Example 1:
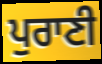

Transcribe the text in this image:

ਪੁਰਾਣੀ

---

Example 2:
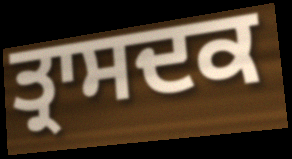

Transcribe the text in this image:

ਤ੍ਰਾਸਦਕ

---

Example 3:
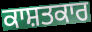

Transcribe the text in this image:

ਕਾਸ਼ਤਕਾਰ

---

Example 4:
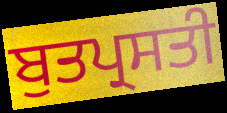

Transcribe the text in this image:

ਬੁਤਪ੍ਰਸਤੀ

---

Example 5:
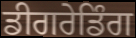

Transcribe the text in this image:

ਡੀਗਰੇਡਿੰਗ